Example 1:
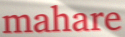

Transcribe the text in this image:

mahare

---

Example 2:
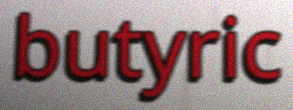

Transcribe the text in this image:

butyric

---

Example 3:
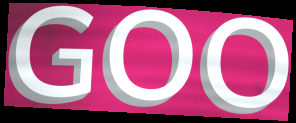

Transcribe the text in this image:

GOO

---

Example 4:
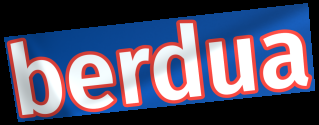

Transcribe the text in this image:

berdua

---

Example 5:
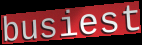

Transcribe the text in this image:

busiest